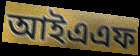
আইএএফ